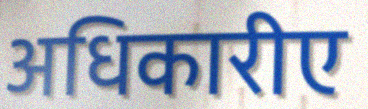
अधिकारीए